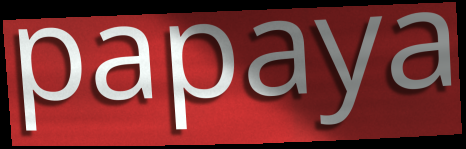
papaya